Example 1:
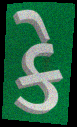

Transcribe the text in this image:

કે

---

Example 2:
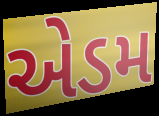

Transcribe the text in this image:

એડમ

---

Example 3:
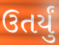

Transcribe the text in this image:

ઉતર્યું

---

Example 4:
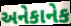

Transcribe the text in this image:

અનેકાનેક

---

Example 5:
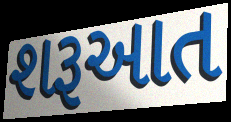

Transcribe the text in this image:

શરૂઆત